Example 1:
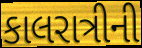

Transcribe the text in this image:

કાલરાત્રીની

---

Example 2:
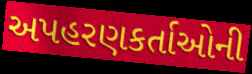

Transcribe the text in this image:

અપહરણકર્તાઓની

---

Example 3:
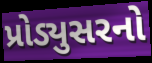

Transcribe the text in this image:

પ્રોડ્યુસરનો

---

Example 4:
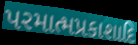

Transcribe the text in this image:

પરમાત્મપ્રકાશાદિ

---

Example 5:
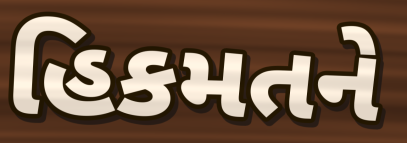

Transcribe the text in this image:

હિકમતને